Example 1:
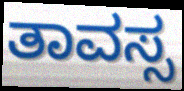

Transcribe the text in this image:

ತಾವಸ್ಸ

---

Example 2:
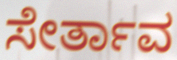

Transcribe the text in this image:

ಸೇರ್ತಾವ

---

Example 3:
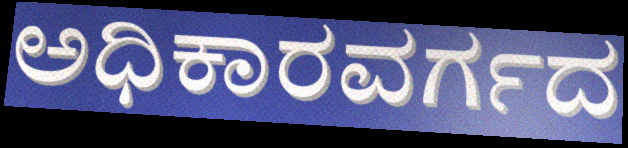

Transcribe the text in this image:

ಅಧಿಕಾರವರ್ಗದ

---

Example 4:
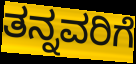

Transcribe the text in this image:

ತನ್ನವರಿಗೆ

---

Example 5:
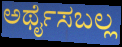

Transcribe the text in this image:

ಅರ್ಥೈಸಬಲ್ಲ